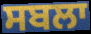
ਸਬਲਾ